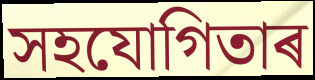
সহযোগিতাৰ